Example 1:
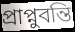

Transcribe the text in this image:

প্রাপ্নুবন্তি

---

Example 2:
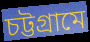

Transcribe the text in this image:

চট্টগ্রামে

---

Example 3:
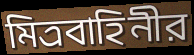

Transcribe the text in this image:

মিত্রবাহিনীর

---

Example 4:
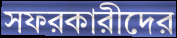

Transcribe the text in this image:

সফরকারীদের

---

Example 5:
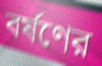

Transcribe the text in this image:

বর্ষণের